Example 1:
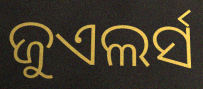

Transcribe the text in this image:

ଜୁଏଲର୍ସ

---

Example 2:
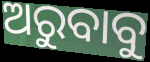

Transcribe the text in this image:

ଅରୁବାବୁ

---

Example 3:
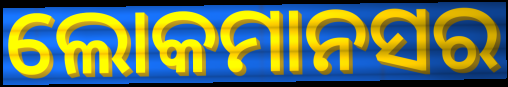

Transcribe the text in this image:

ଲୋକମାନସର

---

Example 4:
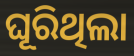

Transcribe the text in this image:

ଘୂରିଥିଲା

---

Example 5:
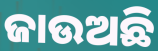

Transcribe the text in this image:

ଜାଉଅଛି